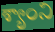
శ్యాంని